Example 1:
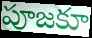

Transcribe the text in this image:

పూజకూ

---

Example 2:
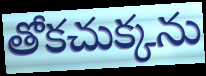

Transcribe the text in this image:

తోకచుక్కను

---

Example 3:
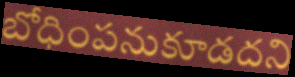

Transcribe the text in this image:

బోధింపనుకూడదని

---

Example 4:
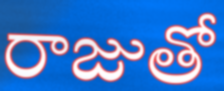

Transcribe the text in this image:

రాజుతో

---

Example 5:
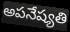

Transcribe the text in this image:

అపనేష్యతి